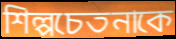
শিল্পচেতনাকে